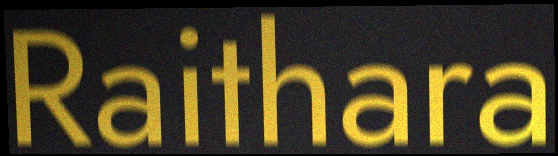
Raithara